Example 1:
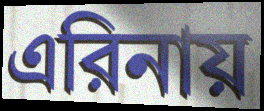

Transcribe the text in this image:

এরিনায়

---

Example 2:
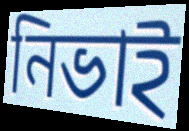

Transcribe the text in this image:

নিভাই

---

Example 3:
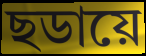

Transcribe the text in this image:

ছডায়ে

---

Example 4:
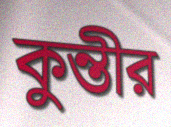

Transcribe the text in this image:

কুন্তীর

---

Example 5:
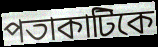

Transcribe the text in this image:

পতাকাটিকে